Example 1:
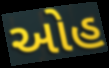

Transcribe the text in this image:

ઓહ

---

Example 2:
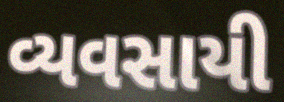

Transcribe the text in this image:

વ્યવસાયી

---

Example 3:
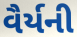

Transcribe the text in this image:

વૈર્યની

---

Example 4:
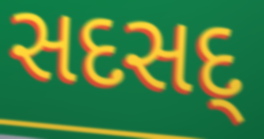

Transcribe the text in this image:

સદસદ્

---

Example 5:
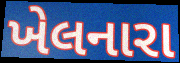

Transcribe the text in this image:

ખેલનારા